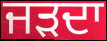
ਜੜਦਾ